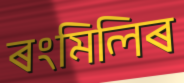
ৰংমিলিৰ